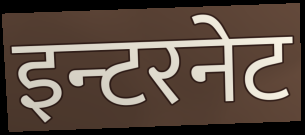
इन्‍टरनेट